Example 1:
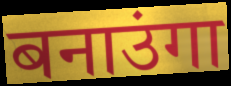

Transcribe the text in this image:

बनाउंगा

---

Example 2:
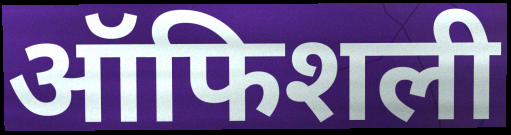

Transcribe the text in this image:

ऑफिशली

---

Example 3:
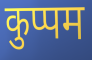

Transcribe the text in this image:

कुप्पम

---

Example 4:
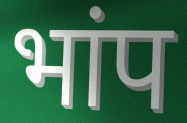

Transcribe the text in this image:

भांप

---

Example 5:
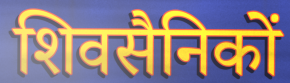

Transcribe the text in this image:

शिवसैनिकों